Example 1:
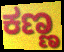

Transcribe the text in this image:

ಕಣ್ಣ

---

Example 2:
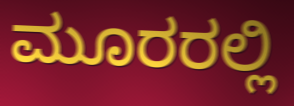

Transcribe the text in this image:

ಮೂರರಲ್ಲಿ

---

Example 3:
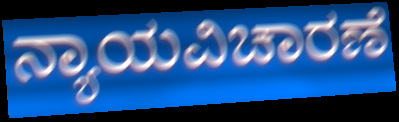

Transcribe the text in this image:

ನ್ಯಾಯವಿಚಾರಣೆ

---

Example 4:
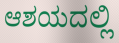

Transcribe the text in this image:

ಆಶಯದಲ್ಲಿ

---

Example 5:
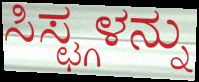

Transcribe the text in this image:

ಸಿಸ್ಟ್ಗಳನ್ನು